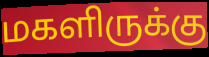
மகளிருக்கு